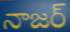
నాజర్